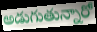
అడుగుతున్నారో